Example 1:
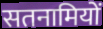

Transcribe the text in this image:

सतनामियों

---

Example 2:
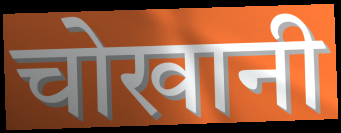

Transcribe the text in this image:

चोखानी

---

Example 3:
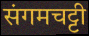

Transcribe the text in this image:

संगमचट्टी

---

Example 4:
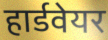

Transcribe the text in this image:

हार्डवेयर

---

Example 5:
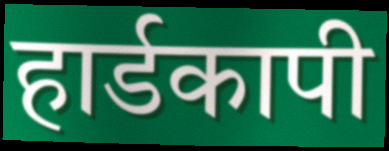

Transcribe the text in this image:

हार्डकापी